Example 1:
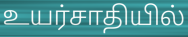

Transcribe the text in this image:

உயர்சாதியில்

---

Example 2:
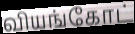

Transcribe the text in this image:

வியங்கோட்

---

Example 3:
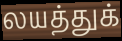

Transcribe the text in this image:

லயத்துக்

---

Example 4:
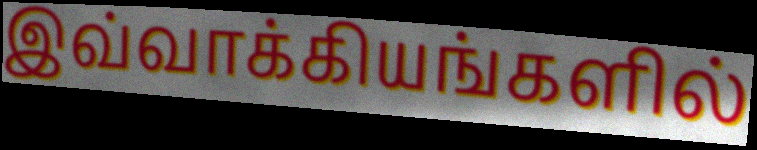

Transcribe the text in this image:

இவ்வாக்கியங்களில்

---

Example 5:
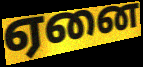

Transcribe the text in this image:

ஏனை